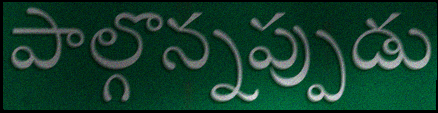
పాల్గొన్నప్పుడు